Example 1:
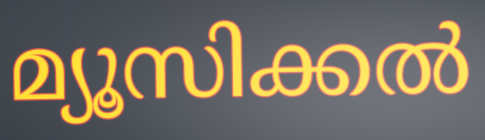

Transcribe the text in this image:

മ്യൂസിക്കൽ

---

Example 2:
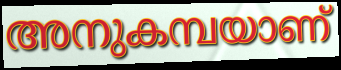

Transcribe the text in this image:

അനുകമ്പയാണ്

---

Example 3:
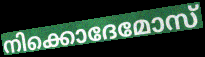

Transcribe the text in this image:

നിക്കൊദേമോസ്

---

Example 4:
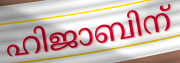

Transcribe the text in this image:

ഹിജാബിന്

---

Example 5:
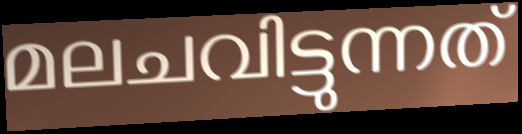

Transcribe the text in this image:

മലചവിട്ടുന്നത്